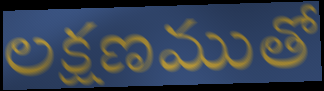
లక్షణముతో